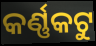
କର୍ଣ୍ଣକଟୁ